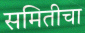
समितीचा